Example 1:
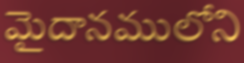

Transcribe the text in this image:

మైదానములోని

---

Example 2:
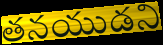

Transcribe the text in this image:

తనయుడని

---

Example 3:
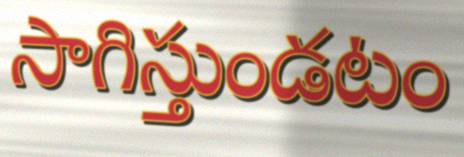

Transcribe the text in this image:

సాగిస్తుండటం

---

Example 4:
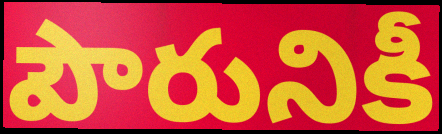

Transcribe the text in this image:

పౌరునికీ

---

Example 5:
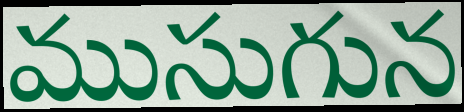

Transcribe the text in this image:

ముసుగున